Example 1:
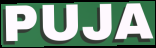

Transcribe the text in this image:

PUJA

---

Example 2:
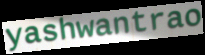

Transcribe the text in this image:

yashwantrao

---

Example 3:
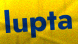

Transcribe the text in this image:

lupta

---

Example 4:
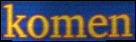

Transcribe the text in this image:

komen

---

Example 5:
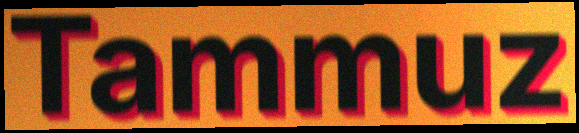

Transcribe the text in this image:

Tammuz